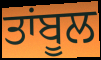
ਤਾਂਬੂਲ